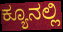
ಕ್ಯೂನಲ್ಲಿ